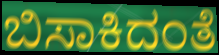
ಬಿಸಾಕಿದಂತೆ